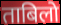
ताबिलो